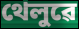
থেলুৱে